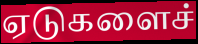
ஏடுகளைச்